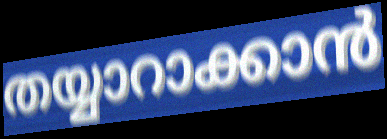
തയ്യാറാക്കാൻ